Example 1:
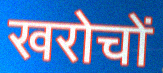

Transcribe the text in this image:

खरोचों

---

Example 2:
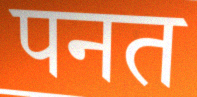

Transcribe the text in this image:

पनत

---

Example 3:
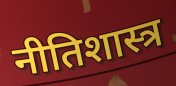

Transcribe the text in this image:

नीतिशास्त्र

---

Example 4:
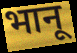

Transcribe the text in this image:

भानू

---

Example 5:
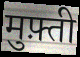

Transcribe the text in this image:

मुफ़्ती